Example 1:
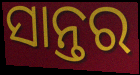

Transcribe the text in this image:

ସାନ୍ତର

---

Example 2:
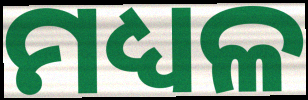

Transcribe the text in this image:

ମଧ୍ୟଳ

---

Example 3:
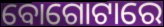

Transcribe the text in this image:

ବୋଗୋଟାରେ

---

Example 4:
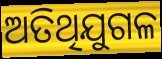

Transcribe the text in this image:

ଅତିଥିଯୁଗଳ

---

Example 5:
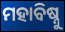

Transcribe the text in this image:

ମହାବିଷ୍ନୁ